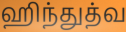
ஹிந்துத்வ